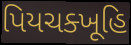
પિયચક્ખૂહિ